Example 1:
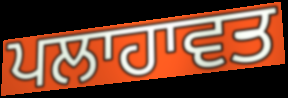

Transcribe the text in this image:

ਪਲਾਹਾਵਤ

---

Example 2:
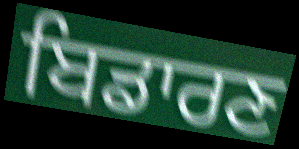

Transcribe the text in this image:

ਬਿਡਾਰਣ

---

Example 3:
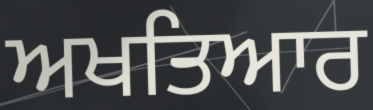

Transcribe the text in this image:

ਅਖਤਿਆਰ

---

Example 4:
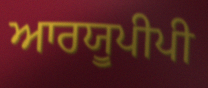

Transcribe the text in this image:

ਆਰਯੂਪੀਪੀ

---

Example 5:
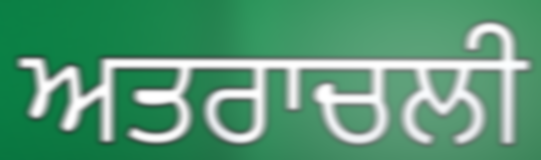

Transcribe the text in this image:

ਅਤਰਾਚਲੀ